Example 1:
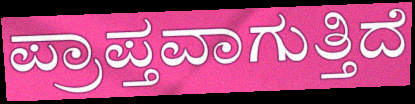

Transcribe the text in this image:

ಪ್ರಾಪ್ತವಾಗುತ್ತಿದೆ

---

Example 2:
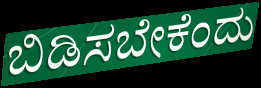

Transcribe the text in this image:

ಬಿಡಿಸಬೇಕೆಂದು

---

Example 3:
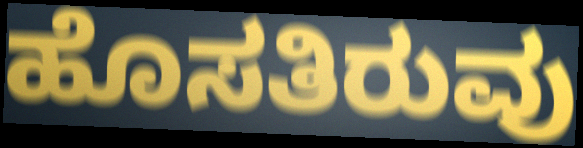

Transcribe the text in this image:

ಹೊಸತಿರುವು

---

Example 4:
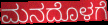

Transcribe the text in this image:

ಮನದೊಳಗೆ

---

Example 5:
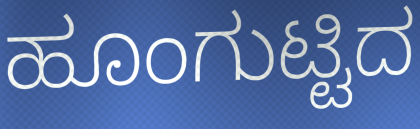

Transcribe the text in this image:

ಹೂಂಗುಟ್ಟಿದ